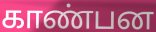
காண்பன